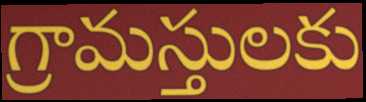
గ్రామస్తులకు